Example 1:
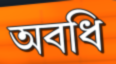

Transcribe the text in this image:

অবধি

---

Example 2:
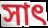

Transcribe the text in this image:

সাৎ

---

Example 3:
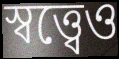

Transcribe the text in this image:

স্বত্ত্বেও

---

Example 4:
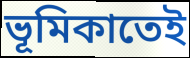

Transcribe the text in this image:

ভূমিকাতেই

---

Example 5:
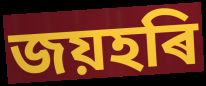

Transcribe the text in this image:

জয়হৰি